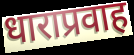
धाराप्रवाह